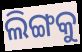
ଲିଙ୍ଗକୁ